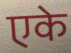
एके